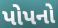
પોપનો